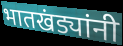
भातखंड्यांनी